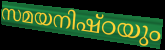
സമയനിഷ്ഠയും